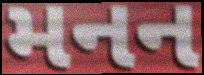
મનન